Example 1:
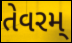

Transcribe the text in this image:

તેવરમ્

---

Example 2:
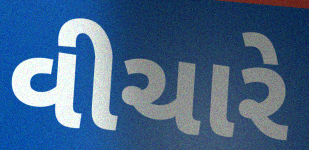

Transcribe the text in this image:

વીચારે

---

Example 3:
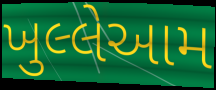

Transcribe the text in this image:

ખુલ્લેઆમ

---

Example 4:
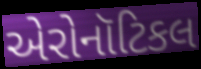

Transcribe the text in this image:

એરોનૉટિકલ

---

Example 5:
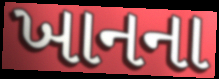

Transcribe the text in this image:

ખાનના